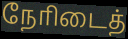
நேரிடைத்